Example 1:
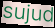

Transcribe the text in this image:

sujud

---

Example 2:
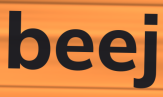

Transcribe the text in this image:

beej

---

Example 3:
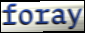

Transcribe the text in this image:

foray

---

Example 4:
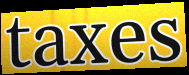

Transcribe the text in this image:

taxes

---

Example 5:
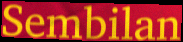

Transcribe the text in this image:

Sembilan